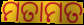
ମତାମତ